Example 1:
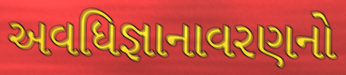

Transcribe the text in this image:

અવધિજ્ઞાનાવરણનો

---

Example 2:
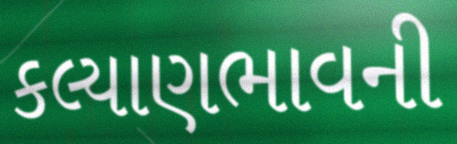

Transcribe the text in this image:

કલ્યાણભાવની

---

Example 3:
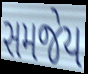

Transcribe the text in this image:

સમજેય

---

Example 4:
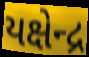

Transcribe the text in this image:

યક્ષેન્દ્ર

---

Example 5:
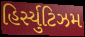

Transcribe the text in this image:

હિર્સ્યુટિઝમ